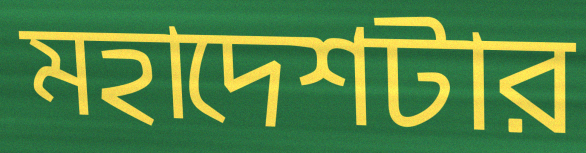
মহাদেশটার